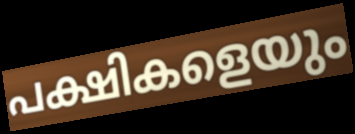
പക്ഷികളെയും